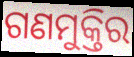
ଗଣମୁକ୍ତିର